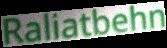
Raliatbehn